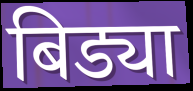
बिड्या